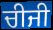
ਚੀਜੀ